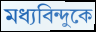
মধ্যবিন্দুকে